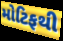
મોટિફથી